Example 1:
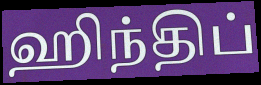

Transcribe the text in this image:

ஹிந்திப்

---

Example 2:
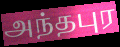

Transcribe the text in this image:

அந்தபுர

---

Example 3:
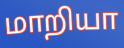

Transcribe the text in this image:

மாறியா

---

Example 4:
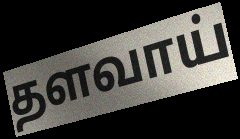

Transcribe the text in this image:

தளவாய்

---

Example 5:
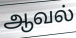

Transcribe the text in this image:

ஆவல்